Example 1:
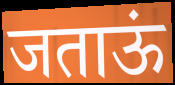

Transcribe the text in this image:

जताऊं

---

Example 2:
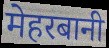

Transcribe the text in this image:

मेहरबानी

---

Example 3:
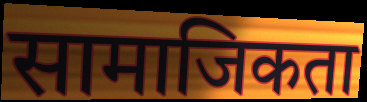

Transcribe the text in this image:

सामाजिकता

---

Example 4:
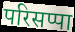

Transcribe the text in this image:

परिसप्पा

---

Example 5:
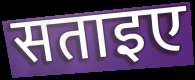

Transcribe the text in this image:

सताइए